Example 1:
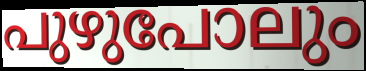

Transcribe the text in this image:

പുഴുപോലും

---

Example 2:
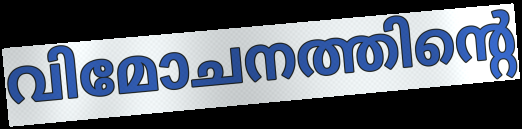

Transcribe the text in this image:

വിമോചനത്തിന്റെ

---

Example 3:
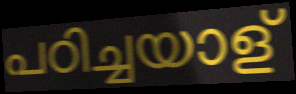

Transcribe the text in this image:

പഠിച്ചയാള്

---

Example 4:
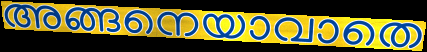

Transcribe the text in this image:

അങ്ങനെയാവാതെ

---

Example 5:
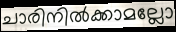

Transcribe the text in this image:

ചാരിനിൽക്കാമല്ലോ